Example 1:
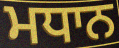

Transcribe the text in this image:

ਮਧਾਨ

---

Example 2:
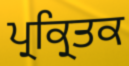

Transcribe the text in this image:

ਪ੍ਰਕ੍ਰਿਤਕ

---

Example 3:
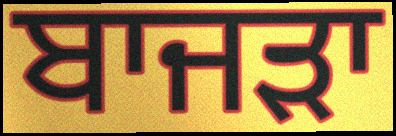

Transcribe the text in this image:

ਬਾਜਡ਼ਾ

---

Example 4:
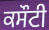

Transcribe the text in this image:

ਕਸੌਟੀ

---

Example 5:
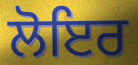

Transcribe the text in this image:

ਲੋਇਰ